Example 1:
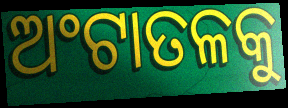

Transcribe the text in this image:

ଅଂଟାତଳକୁ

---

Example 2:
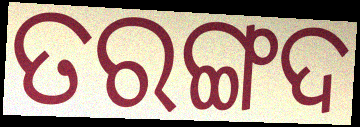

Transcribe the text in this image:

ତରଙ୍ଗଦ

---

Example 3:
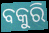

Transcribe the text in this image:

ବକୁରି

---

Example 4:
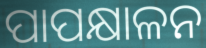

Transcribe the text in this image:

ପାପକ୍ଷାଳନ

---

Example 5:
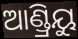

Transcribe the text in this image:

ଆଣ୍ଡ୍ରିୟୁ